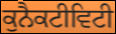
ਕੁਨੈਕਟੀਵਿਟੀ